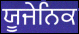
ਯੂਜੇਨਿਕ